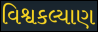
વિશ્વકલ્યાણ